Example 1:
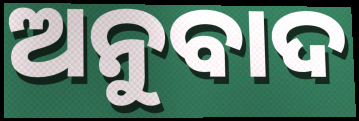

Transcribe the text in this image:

ଅନୁବାଦ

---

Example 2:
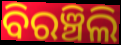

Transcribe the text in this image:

ବିରଞ୍ଚିଲି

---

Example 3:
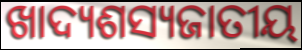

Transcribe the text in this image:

ଖାଦ୍ୟଶସ୍ୟଜାତୀୟ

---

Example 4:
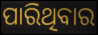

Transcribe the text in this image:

ପାରିଥିବାର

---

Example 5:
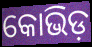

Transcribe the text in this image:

କୋଭିଡ଼